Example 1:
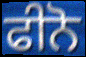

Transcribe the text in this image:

ਫੀਨੋ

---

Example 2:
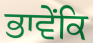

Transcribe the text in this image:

ਭਾਵੇਂਕਿ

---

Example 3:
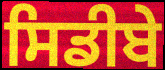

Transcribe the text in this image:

ਸਿਡੀਬੇ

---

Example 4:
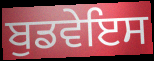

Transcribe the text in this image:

ਬੁਡਵੇਇਸ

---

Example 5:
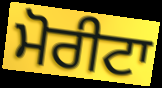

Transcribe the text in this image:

ਮੋਰੀਟਾ